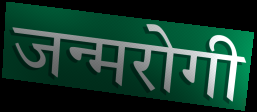
जन्मरोगी